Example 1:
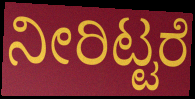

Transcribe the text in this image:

ನೀರಿಟ್ಟರೆ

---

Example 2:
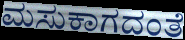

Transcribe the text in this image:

ಮಸುಕಾಗದಂತೆ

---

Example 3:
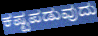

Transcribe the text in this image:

ಕಷ್ಟಪಡುವುದು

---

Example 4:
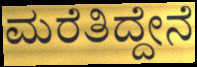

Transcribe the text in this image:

ಮರೆತಿದ್ದೇನೆ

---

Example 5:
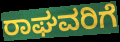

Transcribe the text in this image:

ರಾಘವರಿಗೆ